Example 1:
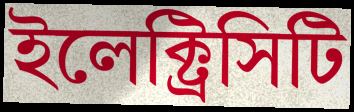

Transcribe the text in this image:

ইলেক্ট্রিসিটি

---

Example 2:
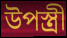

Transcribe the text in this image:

উপস্ত্রী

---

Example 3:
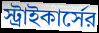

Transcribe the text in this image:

স্ট্রাইকার্সের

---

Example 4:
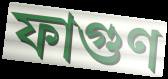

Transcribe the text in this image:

ফাগুণ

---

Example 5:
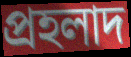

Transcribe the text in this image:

প্রহলাদ